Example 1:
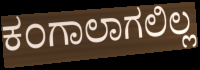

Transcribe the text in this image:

ಕಂಗಾಲಾಗಲಿಲ್ಲ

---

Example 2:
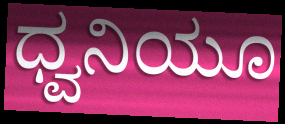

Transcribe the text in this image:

ಧ್ವನಿಯೂ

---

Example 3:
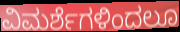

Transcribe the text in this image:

ವಿಮರ್ಶೆಗಳಿಂದಲೂ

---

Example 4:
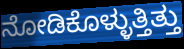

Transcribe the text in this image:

ನೋಡಿಕೊಳ್ಳುತ್ತಿತ್ತು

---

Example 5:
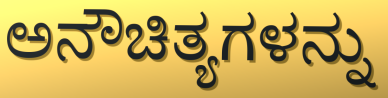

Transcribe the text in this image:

ಅನೌಚಿತ್ಯಗಳನ್ನು